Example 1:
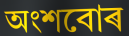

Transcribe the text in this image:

অংশবোৰ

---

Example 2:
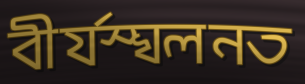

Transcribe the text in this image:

বীৰ্যস্খলনত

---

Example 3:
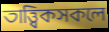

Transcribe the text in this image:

তাত্ত্বিকসকলে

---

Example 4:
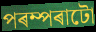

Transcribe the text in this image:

পৰম্পৰাটো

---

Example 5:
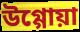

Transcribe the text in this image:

উগ্গোয়া